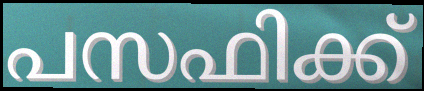
പസഫിക്ക്